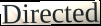
Directed